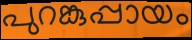
പുറങ്കുപ്പായം